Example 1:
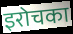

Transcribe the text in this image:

इरोचका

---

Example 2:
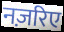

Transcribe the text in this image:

नज़रिए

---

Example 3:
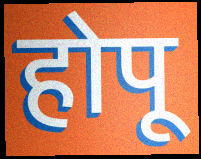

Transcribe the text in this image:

होपू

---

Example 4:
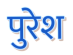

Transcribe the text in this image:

पुरेश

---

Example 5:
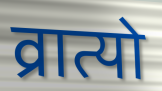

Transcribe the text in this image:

व्रात्यो